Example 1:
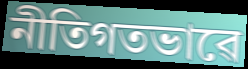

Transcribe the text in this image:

নীতিগতভাৱে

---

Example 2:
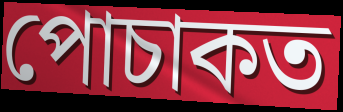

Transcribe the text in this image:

পোচাকত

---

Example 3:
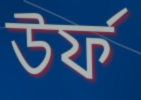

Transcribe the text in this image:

উৰ্ফ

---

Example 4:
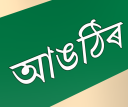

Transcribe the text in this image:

আঙঠিৰ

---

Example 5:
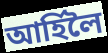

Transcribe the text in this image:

আৰ্হিলৈ